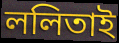
ললিতাই